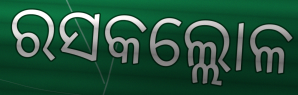
ରସକଲ୍ଲୋଳ